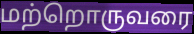
மற்றொருவரை